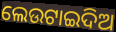
ଲେଉଟାଇଦିଅ